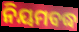
ନିୟମବଦ୍ଧ